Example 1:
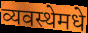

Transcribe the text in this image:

व्यवस्थेमधे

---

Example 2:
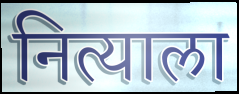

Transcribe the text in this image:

नित्याला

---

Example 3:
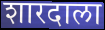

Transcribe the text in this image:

शारदाला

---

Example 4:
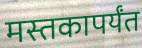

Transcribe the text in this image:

मस्तकापर्यंत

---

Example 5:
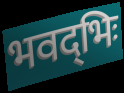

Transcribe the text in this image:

भवद्‌भिः